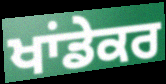
ਖਾਂਡੇਕਰ